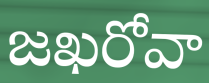
జఖరోవా